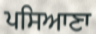
ਪਸਿਆਣਾ